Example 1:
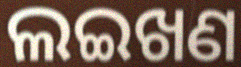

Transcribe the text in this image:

ଲଇଖଣ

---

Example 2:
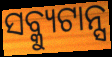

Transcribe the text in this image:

ସବ୍କ୍ୟୁଟାନ୍ସ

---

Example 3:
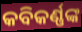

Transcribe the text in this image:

କବିକର୍ଣ୍ଣଙ୍କ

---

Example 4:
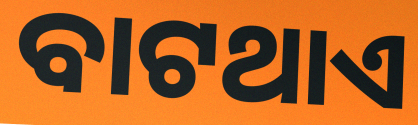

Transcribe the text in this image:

ବାଟଥାଏ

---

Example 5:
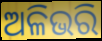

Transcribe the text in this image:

ଅଳିଭରି